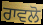
ਰਾਵਲੋ